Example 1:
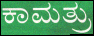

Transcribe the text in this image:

ಕಾಮತ್ರು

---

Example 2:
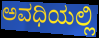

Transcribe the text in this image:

ಅವಧಿಯಲ್ಲಿ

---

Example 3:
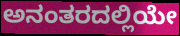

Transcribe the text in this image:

ಅನಂತರದಲ್ಲಿಯೇ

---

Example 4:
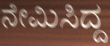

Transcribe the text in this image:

ನೇಮಿಸಿದ್ದ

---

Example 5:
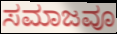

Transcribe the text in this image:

ಸಮಾಜವೂ